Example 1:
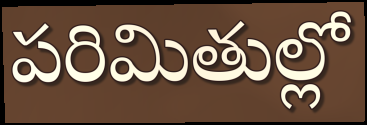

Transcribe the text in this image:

పరిమితుల్లో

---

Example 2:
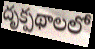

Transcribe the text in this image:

దృక్పథాలలో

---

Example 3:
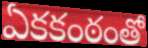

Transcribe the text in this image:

ఏకకంఠంతో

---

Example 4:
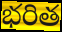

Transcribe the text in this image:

భరిత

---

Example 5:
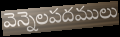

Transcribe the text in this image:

వెన్నెలపదములు